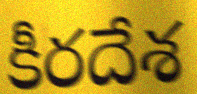
కీరదేశ